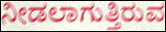
ನೀಡಲಾಗುತ್ತಿರುವ